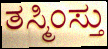
ತಸ್ಮಿಂಸ್ತು